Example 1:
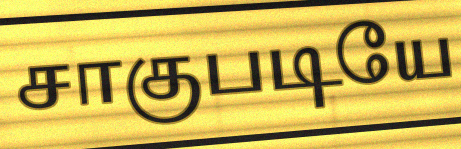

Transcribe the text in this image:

சாகுபடியே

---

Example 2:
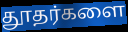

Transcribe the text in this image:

தூதர்களை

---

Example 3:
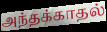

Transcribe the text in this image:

அந்தக்காதல்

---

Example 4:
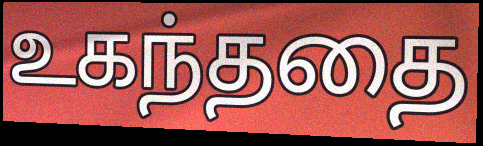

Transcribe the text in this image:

உகந்ததை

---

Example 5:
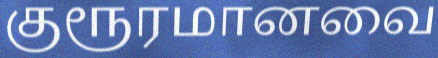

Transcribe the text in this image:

குரூரமானவை